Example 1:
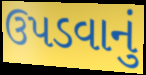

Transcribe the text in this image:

ઉપડવાનું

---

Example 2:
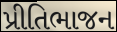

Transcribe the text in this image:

પ્રીતિભાજન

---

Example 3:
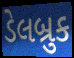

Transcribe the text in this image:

ડેલબ્રુક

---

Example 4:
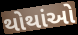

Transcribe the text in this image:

થોથાંઓ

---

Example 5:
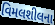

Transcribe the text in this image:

વિમલશીલના